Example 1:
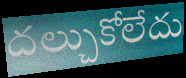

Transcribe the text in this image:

దల్చుకోలేదు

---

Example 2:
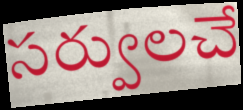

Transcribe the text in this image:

సర్వులచే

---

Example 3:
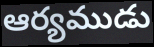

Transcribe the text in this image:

ఆర్యముడు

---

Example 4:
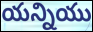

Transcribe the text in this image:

యన్నియు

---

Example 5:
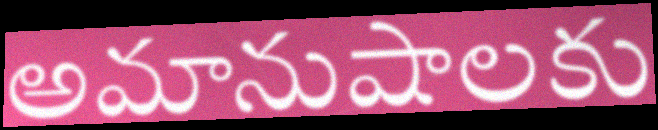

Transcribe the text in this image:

అమానుషాలకు